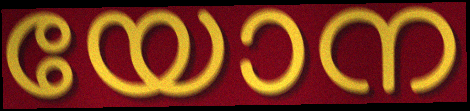
യോന